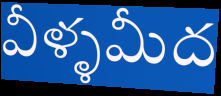
వీళ్ళమీద